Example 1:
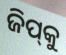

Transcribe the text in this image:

ଜିପ୍‍କୁ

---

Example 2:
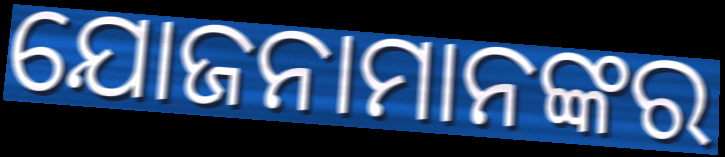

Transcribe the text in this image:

ଯୋଜନାମାନଙ୍କର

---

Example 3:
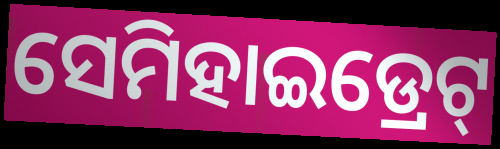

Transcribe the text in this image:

ସେମିହାଇଡ୍ରେଟ୍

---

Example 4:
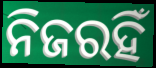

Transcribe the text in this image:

ନିଜରହିଁ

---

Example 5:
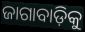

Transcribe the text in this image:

ଜାଗାବାଡ଼ିକୁ